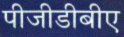
पीजीडीबीए